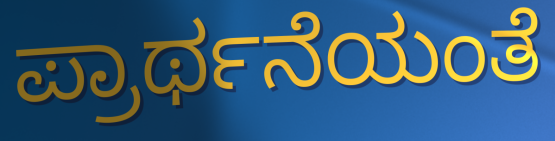
ಪ್ರಾರ್ಥನೆಯಂತೆ